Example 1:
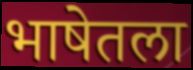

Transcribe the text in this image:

भाषेतला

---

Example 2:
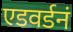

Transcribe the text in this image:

एडवर्डनं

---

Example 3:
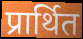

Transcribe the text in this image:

प्रार्थित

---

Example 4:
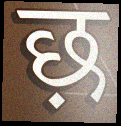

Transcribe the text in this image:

छ़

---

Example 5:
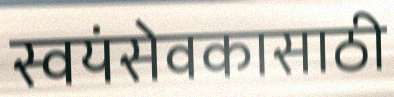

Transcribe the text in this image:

स्वयंसेवकासाठी